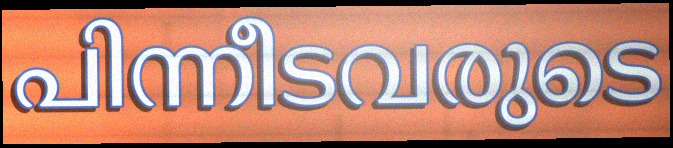
പിന്നീടവരുടെ